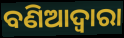
ବଣିଆଦ୍ୱାରା